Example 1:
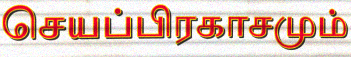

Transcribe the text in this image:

செயப்பிரகாசமும்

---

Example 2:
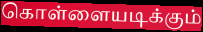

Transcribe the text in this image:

கொள்ளையடிக்கும்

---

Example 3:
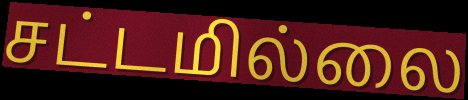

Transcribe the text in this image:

சட்டமில்லை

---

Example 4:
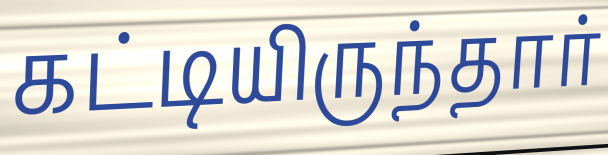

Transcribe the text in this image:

கட்டியிருந்தார்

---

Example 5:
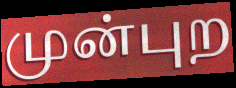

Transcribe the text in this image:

முன்புற